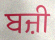
ਬਜ਼ੀ